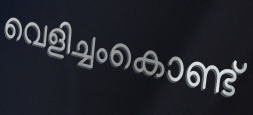
വെളിച്ചംകൊണ്ട്